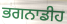
ਭਗਨਾਡੀਹ